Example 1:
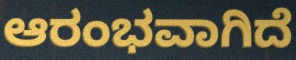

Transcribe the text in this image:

ಆರಂಭವಾಗಿದೆ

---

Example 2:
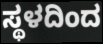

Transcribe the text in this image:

ಸ್ಥಳದಿಂದ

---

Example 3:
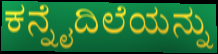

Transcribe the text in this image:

ಕನ್ನೈದಿಲೆಯನ್ನು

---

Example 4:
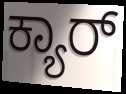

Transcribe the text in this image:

ಕ್ಯಾರ್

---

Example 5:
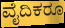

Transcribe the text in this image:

ವೈದಿಕರೂ